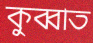
কুব্বাত